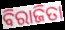
ବିରାଜିତା